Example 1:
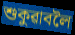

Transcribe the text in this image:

শুকুৱাবলৈ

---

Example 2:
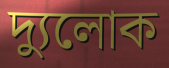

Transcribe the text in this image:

দ্যুলোক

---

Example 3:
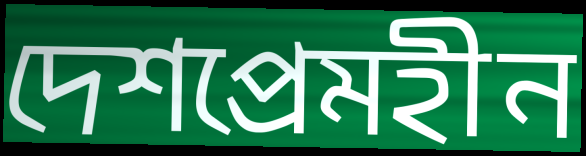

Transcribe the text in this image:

দেশপ্ৰেমহীন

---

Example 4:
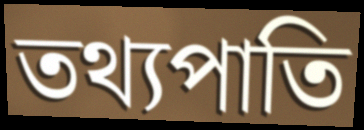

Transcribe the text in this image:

তথ্যপাতি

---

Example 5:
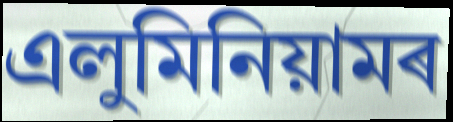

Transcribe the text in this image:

এলুমিনিয়ামৰ